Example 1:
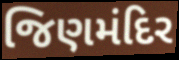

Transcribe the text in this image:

જિણમંદિર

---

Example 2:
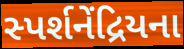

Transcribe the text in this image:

સ્પર્શનેંદ્રિયના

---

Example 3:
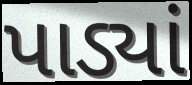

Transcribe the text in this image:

પાડ્યાં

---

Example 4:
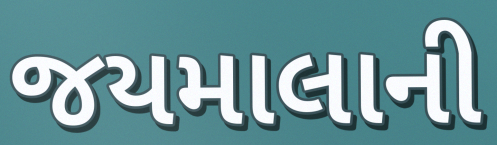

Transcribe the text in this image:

જયમાલાની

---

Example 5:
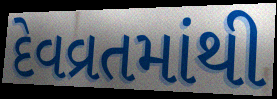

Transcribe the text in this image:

દેવવ્રતમાંથી